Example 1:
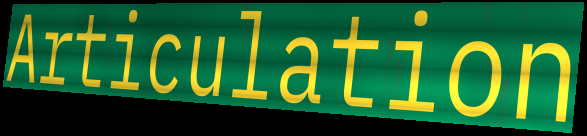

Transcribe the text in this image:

Articulation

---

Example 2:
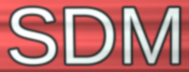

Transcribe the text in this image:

SDM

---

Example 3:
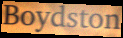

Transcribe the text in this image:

Boydston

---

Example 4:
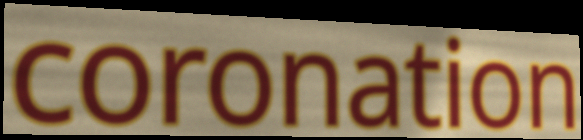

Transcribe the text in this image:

coronation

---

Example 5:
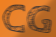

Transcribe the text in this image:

CG